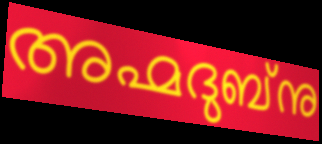
അഹ്മദുബ്നു